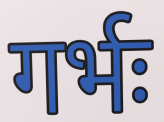
गर्भः